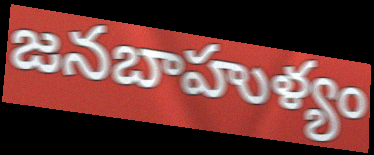
జనబాహుళ్యం